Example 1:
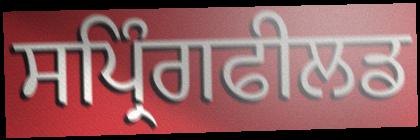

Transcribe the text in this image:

ਸਪ੍ਰਿੰਗਫੀਲਡ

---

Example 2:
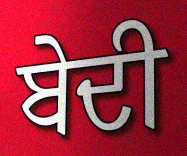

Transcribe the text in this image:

ਬੇਦੀ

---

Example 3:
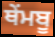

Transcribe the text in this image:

ਥੇਂਮਬੂ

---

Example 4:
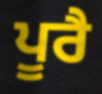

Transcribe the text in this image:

ਪੂਰੈ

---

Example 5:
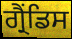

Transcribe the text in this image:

ਗ੍ਰੈਂਡਿਸ